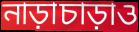
নাড়াচাড়াও